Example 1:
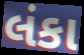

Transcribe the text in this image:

લંકા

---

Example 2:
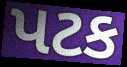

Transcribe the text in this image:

પટક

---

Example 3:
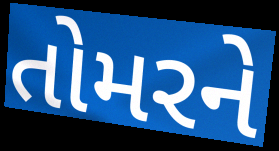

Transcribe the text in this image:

તોમરને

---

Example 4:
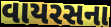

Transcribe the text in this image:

વાયરસના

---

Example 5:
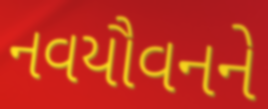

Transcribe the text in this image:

નવયૌવનને